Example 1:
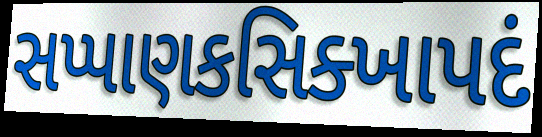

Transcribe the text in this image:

સપ્પાણકસિક્ખાપદં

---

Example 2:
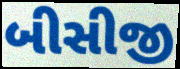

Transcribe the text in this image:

બીસીજી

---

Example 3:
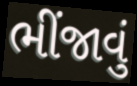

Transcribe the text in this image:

ભીંજાવું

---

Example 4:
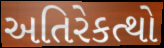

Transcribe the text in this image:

અતિરેકત્થો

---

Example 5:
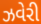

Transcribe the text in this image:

ઝવેરી